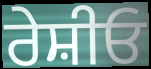
ਰੇਸ਼ੀਓ